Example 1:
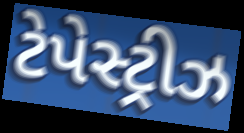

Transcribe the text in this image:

ટેપેસ્ટ્રીઝ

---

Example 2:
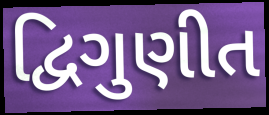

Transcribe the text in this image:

દ્વિગુણીત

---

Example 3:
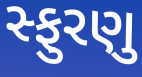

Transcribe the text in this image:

સ્ફુરણુ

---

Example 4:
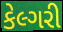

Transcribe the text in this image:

કેલ્ગરી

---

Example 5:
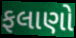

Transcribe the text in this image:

ફલાણો